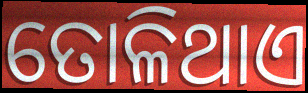
ତୋଳିଥାଏ